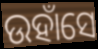
ଉହାଁସେ